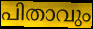
പിതാവും